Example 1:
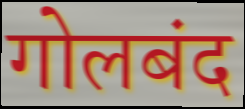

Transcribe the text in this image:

गोलबंद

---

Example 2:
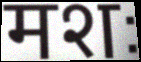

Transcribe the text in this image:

मशः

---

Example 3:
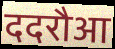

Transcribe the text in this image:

ददरौआ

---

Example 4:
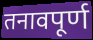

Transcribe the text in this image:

तनावपूर्ण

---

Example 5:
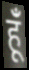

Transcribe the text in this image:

हूंँ